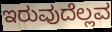
ಇರುವುದೆಲ್ಲವ